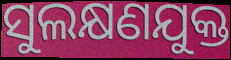
ସୁଲକ୍ଷଣଯୁକ୍ତ